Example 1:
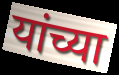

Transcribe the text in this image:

यांच्या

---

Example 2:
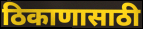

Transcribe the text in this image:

ठिकाणासाठी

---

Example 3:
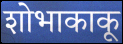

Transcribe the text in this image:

शोभाकाकू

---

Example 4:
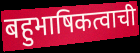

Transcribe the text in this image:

बहुभाषिकत्वाची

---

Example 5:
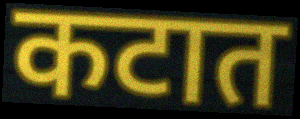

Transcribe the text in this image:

कटात